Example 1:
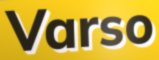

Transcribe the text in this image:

Varso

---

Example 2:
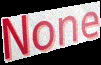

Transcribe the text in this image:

None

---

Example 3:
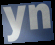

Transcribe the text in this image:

yn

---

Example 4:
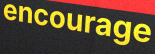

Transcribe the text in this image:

encourage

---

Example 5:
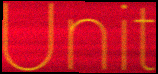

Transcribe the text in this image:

Unit